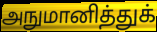
அநுமானித்துக்